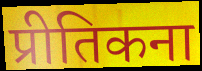
प्रीतिकना